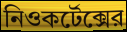
নিওকর্টেক্সের